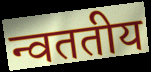
न्वततीय